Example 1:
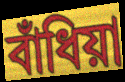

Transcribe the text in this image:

বাঁধিয়া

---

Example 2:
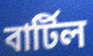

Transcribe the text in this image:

বার্টিল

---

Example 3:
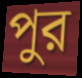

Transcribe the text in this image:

পুর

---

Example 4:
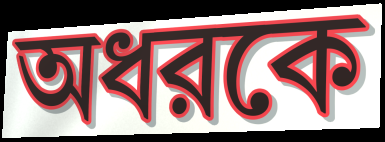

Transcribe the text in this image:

অধরকে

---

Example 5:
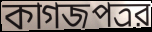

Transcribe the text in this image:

কাগজপত্রর